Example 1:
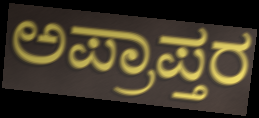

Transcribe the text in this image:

ಅಪ್ರಾಪ್ತರ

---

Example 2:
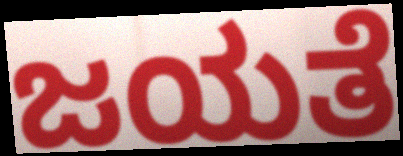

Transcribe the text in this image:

ಜಯತೆ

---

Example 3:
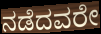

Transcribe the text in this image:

ನಡೆದವರೇ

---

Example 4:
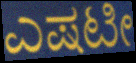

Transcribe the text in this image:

ಎಷಟೀ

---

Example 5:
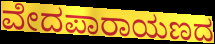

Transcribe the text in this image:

ವೇದಪಾರಾಯಣದ